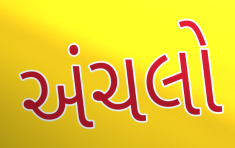
અંચલો